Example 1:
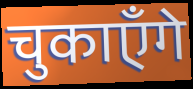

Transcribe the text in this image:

चुकाएँगे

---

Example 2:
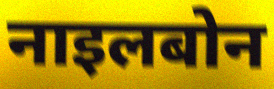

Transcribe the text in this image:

नाइलबोन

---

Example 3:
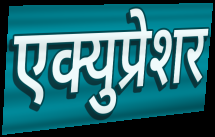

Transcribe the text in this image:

एक्युप्रेशर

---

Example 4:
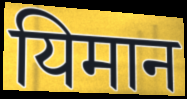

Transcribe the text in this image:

यिमान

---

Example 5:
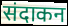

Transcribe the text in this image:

संदाकन